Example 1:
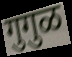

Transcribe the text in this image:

गुगुळ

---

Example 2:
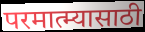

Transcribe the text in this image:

परमात्म्यासाठी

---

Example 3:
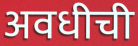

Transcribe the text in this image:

अवधीची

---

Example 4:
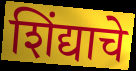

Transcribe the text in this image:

शिंद्याचे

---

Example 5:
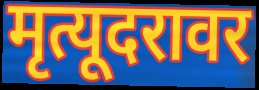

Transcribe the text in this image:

मृत्यूदरावर